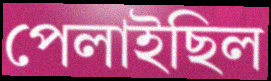
পেলাইছিল